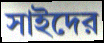
সাইদের